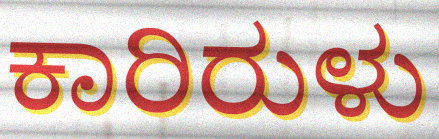
ಕಾರಿರುಳು